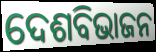
ଦେଶବିଭାଜନ